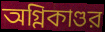
অগ্নিকাণ্ডর